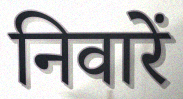
निवारें